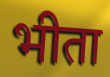
भीता